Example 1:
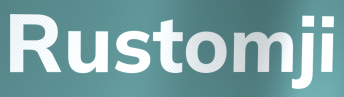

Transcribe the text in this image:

Rustomji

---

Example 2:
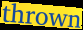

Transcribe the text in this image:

thrown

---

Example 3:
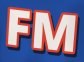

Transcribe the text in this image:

FM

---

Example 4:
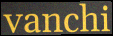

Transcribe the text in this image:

vanchi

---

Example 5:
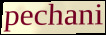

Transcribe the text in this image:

pechani